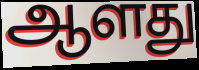
ஆளது